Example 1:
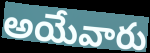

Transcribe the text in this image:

అయేవారు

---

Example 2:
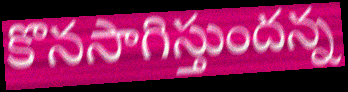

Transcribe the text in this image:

కొనసాగిస్తుందన్న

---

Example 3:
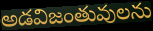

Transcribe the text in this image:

అడవిజంతువులను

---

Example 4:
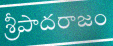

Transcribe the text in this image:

శ్రీపాదరాజం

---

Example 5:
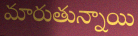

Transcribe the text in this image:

మారుతున్నాయి